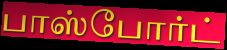
பாஸ்போர்ட்